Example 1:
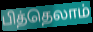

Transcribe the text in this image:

பித்தெலாம்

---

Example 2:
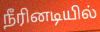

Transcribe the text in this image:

நீரினடியில்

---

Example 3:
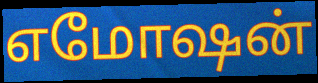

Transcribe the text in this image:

எமோஷன்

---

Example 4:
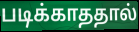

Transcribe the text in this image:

படிக்காததால்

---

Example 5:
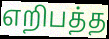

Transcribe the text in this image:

எறிபத்த